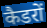
कैडरों